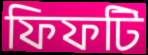
ফিফটি